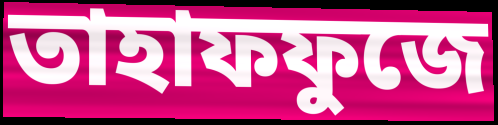
তাহাফফুজে